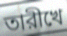
তারীখে